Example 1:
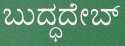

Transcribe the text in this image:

ಬುದ್ಧದೇಬ್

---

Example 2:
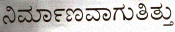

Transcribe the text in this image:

ನಿರ್ಮಾಣವಾಗುತಿತ್ತು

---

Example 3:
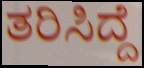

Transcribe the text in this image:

ತರಿಸಿದ್ದೆ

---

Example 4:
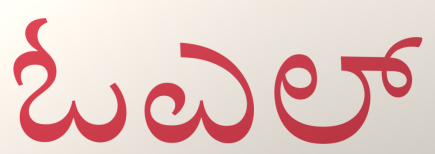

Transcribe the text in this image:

ಓಎಲ್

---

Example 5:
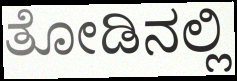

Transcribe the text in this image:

ತೋಡಿನಲ್ಲಿ